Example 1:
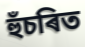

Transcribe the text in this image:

হুঁচৰিত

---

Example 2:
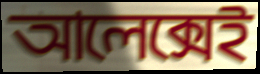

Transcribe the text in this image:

আলেক্সেই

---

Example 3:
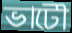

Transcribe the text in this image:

ভাটৌ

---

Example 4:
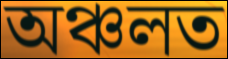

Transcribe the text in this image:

অঞ্চলত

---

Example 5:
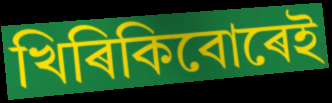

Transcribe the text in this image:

খিৰিকিবোৰেই